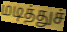
மடித்துச்